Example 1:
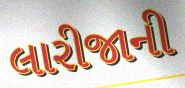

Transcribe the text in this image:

લારીજાની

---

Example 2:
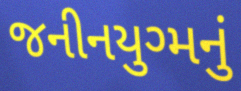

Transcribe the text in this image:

જનીનયુગ્મનું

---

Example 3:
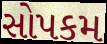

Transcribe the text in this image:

સોપકમ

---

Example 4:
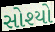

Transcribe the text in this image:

સોશ્યો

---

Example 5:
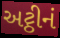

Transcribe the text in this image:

અટ્ઠીનં